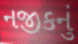
નજીકનું